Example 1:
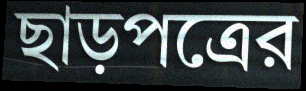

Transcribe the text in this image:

ছাড়পত্রের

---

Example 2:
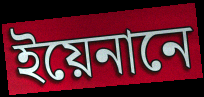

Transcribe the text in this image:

ইয়েনানে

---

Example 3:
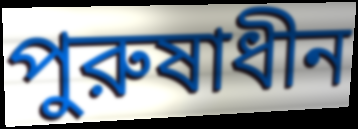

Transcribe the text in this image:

পুরুষাধীন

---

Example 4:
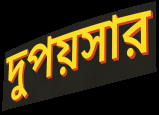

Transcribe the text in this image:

দুপয়সার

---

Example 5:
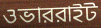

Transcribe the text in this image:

ওভাররাইট